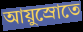
আয়ুস্রোতে